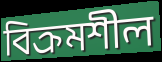
বিক্ৰমশীল